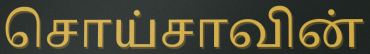
சொய்சாவின்